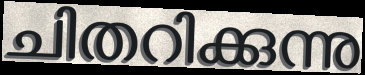
ചിതറിക്കുന്നു